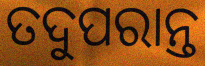
ତଦୁପରାନ୍ତ